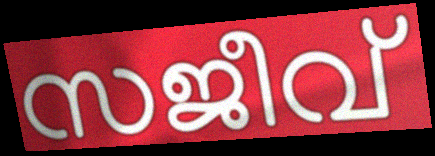
സജീവ്